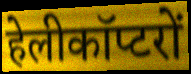
हेलीकॉप्टरों